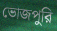
ভোজপুরি